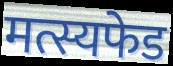
मत्स्यफेड